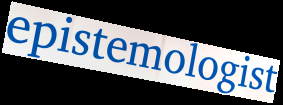
epistemologist